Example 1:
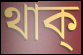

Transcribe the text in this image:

থাক্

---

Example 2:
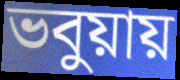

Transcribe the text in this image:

ভবুয়ায়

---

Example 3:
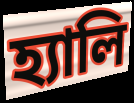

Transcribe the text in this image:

হ্যালি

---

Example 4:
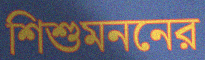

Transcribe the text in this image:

শিশুমননের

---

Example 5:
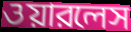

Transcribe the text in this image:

ওয়ারলেস